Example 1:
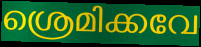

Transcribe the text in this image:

ശ്രെമിക്കവേ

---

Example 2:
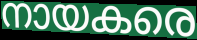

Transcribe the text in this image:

നായകരെ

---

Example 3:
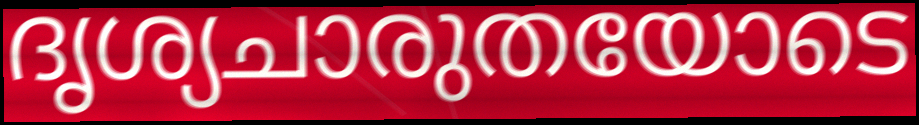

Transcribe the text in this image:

ദൃശ്യചാരുതയോടെ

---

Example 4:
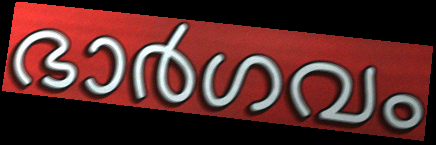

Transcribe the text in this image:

ഭാർഗവം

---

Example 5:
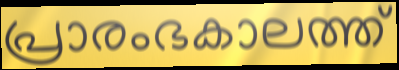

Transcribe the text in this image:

പ്രാരംഭകാലത്ത്